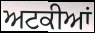
ਅਟਕੀਆਂ